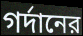
গর্দানের